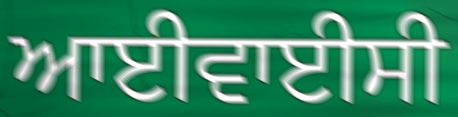
ਆਈਵਾਈਸੀ